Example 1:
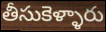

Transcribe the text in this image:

తీసుకెళ్ళారు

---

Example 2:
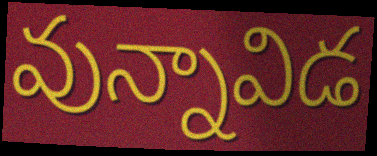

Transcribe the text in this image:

వున్నావిడ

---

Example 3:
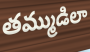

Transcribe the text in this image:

తమ్ముడిలా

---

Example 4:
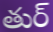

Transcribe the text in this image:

తుర్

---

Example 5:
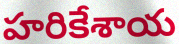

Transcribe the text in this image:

హరికేశాయ